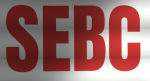
SEBC